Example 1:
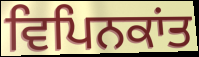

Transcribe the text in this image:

ਵਿਪਿਨਕਾਂਤ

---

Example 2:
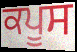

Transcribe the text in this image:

ਕਪੂਸ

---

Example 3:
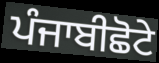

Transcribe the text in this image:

ਪੰਜਾਬੀਛੋਟੇ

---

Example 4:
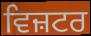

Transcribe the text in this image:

ਵਿਜ਼ਟਰ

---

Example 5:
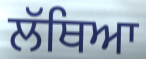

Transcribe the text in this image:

ਲੱਥਿਆ